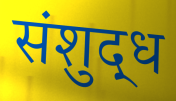
संशुद्ध